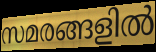
സമരങ്ങളിൽ